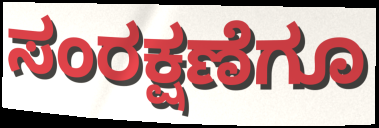
ಸಂರಕ್ಷಣೆಗೂ